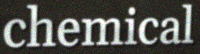
chemical